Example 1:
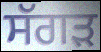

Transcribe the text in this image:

ਸੱਗੜ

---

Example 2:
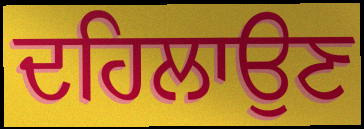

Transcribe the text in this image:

ਦਹਿਲਾਉਣ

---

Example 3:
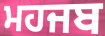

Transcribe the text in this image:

ਮਹਜਬ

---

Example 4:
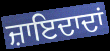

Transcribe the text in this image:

ਜ਼ਾਇਦਾਦਾਂ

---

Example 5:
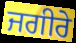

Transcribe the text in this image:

ਜਗੀਰੇ